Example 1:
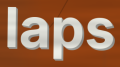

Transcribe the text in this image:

laps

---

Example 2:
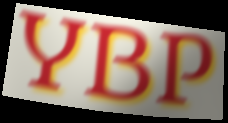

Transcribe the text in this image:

YBP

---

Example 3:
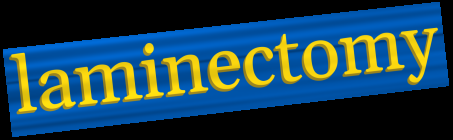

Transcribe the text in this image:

laminectomy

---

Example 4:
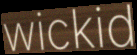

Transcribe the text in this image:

wickid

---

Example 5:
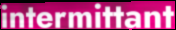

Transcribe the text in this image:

intermittant